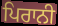
ਪਿਰਾਨੀ